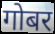
गोबर